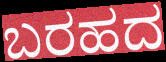
ಬರಹದ